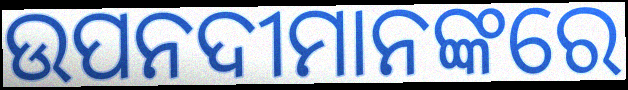
ଉପନଦୀମାନଙ୍କରେ